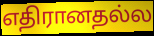
எதிரானதல்ல